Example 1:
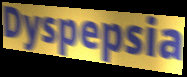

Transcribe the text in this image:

Dyspepsia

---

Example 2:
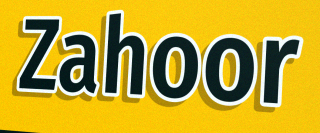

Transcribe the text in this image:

Zahoor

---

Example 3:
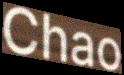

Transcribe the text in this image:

Chao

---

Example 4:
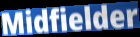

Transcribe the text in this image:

Midfielder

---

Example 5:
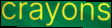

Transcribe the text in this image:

crayons